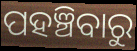
ପହଞ୍ଚିବାରୁ